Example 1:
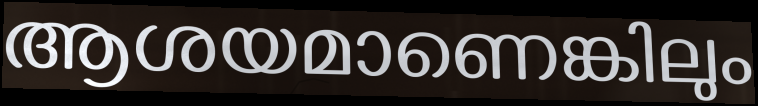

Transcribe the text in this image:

ആശയമാണെങ്കിലും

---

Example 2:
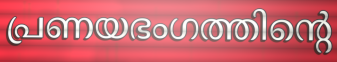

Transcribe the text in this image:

പ്രണയഭംഗത്തിന്റെ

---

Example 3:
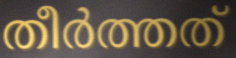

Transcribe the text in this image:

തീർത്തത്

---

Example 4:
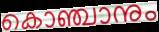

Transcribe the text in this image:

കൊഞ്ചാനും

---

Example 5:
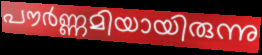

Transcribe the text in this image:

പൗർണ്ണമിയായിരുന്നു